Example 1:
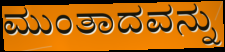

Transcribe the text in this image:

ಮುಂತಾದವನ್ನು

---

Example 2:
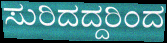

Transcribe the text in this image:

ಸುರಿದದ್ದರಿಂದ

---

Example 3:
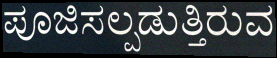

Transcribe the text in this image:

ಪೂಜಿಸಲ್ಪಡುತ್ತಿರುವ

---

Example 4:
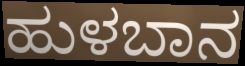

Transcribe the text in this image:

ಹುಳಬಾನ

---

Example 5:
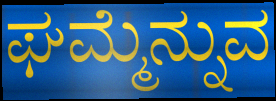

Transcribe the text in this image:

ಘಮ್ಮೆನ್ನುವ